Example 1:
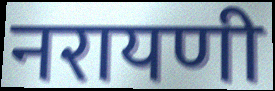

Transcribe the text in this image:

नरायणी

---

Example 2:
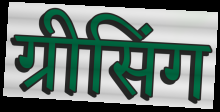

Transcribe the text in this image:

ग्रीसिंग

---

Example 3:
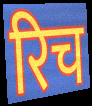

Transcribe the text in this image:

रिच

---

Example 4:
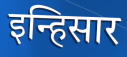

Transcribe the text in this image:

इन्हिसार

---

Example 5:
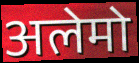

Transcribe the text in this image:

अलेमो